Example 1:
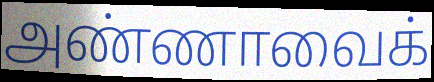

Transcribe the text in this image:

அண்ணாவைக்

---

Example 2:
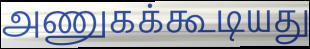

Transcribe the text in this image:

அணுகக்கூடியது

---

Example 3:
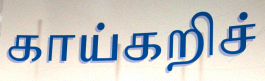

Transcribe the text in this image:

காய்கறிச்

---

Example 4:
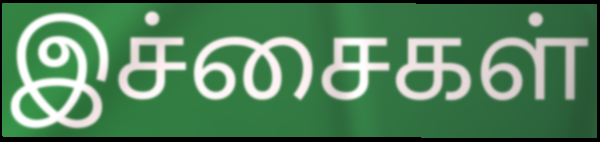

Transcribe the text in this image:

இச்சைகள்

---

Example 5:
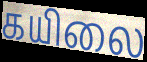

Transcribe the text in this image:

கயிலை